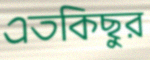
এতকিছুর